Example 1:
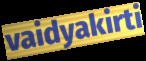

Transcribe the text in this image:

vaidyakirti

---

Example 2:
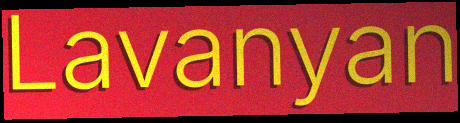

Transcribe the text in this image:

Lavanyan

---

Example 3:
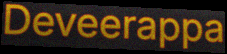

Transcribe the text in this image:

Deveerappa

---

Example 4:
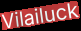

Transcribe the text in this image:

Vilailuck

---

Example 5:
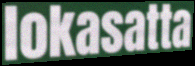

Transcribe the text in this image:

lokasatta